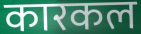
कारकल